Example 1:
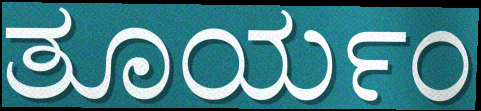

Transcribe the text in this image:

ತೂರ್ಯಂ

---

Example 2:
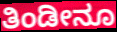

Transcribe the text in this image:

ತಿಂಡೀನೂ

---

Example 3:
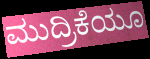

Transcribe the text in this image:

ಮುದ್ರಿಕೆಯೂ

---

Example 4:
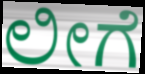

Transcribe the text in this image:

ಲೀಗೆ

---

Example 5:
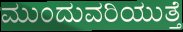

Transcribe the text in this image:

ಮುಂದುವರಿಯುತ್ತೆ